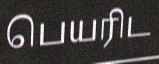
பெயரிட